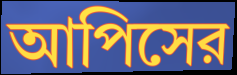
আপিসের